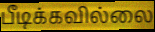
பீடிக்கவில்லை